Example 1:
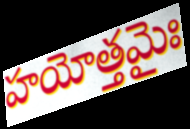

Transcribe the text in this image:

హయోత్తమైః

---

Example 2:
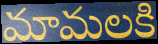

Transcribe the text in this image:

మామలకి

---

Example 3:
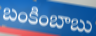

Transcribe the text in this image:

బంకింబాబు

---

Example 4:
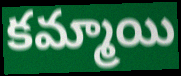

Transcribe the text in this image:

కమ్మాయి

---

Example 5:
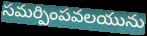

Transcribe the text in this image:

సమర్పింపవలయును